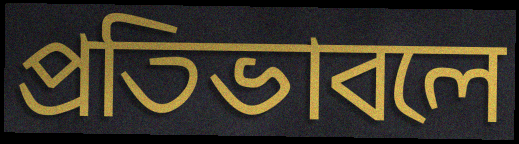
প্রতিভাবলে